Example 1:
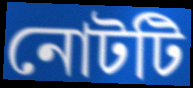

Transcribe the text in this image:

নোটটি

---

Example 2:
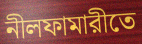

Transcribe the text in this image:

নীলফামারীতে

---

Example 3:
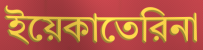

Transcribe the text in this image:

ইয়েকাতেরিনা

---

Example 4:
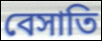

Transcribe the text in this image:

বেসাতি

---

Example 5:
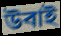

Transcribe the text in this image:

উবাই